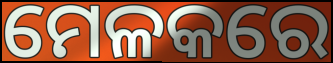
ମେଳକରେ